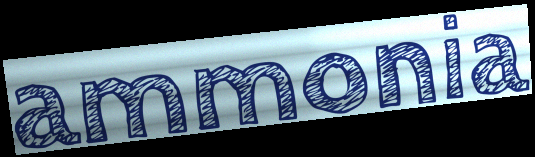
ammonia